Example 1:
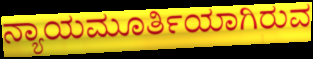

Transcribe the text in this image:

ನ್ಯಾಯಮೂರ್ತಿಯಾಗಿರುವ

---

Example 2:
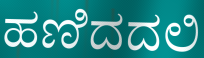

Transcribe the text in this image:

ಹಣಿದದಲಿ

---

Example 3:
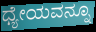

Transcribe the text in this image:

ಧ್ಯೇಯವನ್ನೂ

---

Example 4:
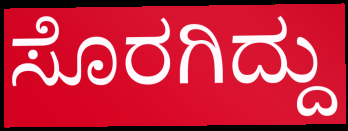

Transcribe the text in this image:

ಸೊರಗಿದ್ದು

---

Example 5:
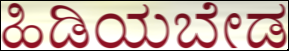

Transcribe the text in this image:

ಹಿಡಿಯಬೇಡ